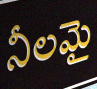
నీలమై